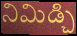
నిమిడ్చి